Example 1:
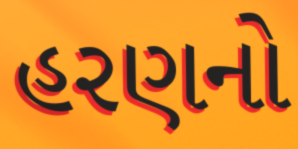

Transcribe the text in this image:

હરણનો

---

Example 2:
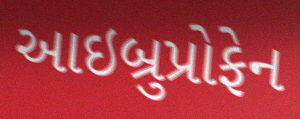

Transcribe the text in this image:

આઇબ્રુપ્રોફેન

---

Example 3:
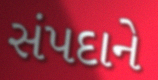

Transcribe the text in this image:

સંપદાને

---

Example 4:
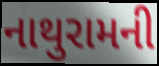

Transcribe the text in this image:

નાથુરામની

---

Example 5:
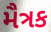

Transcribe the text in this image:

મૈત્રક